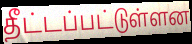
தீட்டப்பட்டுள்ளன